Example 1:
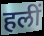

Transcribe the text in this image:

हलीं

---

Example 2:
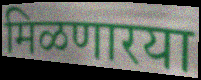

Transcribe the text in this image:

मिळणारया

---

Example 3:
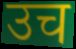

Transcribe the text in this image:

उच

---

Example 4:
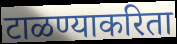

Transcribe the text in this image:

टाळण्याकरिता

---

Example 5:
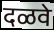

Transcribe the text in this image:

दळवे